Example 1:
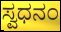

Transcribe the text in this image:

ಸ್ವಧನಂ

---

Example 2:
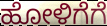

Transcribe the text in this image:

ಹೋಳಿಗೆಗೆ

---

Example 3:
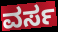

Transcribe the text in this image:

ವರ್ಸ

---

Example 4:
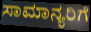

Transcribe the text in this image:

ಸಾಮಾನ್ಯರಿಗೆ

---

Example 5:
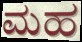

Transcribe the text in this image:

ಮಹ